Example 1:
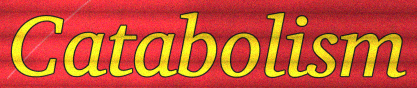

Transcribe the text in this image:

Catabolism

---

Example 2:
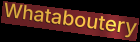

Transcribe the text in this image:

Whataboutery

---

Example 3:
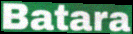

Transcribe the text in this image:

Batara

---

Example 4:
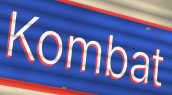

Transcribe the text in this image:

Kombat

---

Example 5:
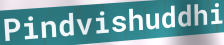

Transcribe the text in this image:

Pindvishuddhi